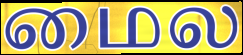
மைல